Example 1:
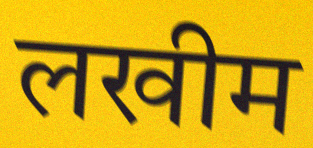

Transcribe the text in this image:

लखीम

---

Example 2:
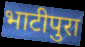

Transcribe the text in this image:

भाटीपुरा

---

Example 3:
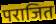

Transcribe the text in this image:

पराजित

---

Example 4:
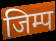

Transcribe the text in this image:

जिम्प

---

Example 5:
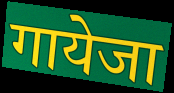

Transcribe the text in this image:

गायेजा